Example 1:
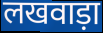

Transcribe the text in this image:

लखवाड़ा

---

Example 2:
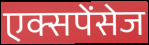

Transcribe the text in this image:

एक्सपेंसेज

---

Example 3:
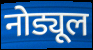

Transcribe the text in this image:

नोड्यूल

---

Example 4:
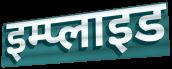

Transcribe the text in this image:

इम्प्लाइड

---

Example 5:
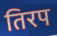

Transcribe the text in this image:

तिरप